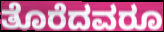
ತೊರೆದವರೂ